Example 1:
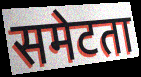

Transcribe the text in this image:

समेटता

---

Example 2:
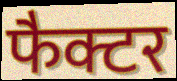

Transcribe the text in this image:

फैक्टर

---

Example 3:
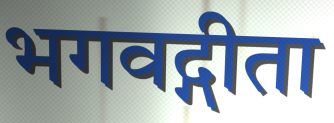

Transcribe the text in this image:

भगवद्गीता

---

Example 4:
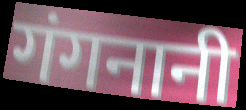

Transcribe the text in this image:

गंगनानी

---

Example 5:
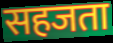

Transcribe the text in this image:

सहजता